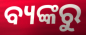
ବ୍ୟଙ୍କରୁ